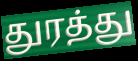
துரத்து